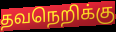
தவநெறிக்கு